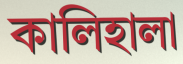
কালিহালা